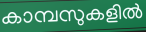
കാമ്പസുകളിൽ